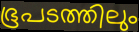
ഭൂപടത്തിലും